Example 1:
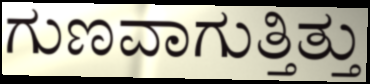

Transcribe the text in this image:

ಗುಣವಾಗುತ್ತಿತ್ತು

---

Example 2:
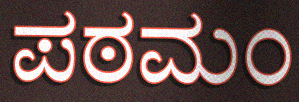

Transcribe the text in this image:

ಪಠಮಂ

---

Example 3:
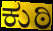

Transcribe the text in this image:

ಕುಠಿ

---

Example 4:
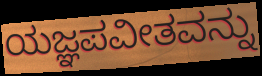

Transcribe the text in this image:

ಯಜ್ಞಪವೀತವನ್ನು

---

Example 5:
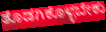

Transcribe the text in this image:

ತೊಡಗಿಕೊಳ್ಳಬೇಕು